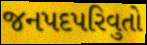
જનપદપરિવુતો